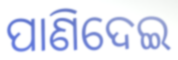
ପାଣିଦେଇ